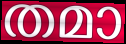
തമാ